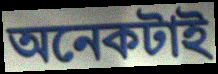
অনেকটাই